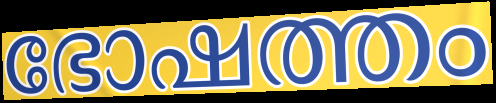
ഭോഷത്തം